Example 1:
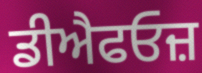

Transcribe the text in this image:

ਡੀਐਫਓਜ਼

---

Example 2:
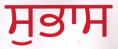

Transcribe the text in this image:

ਸੁਭਾਸ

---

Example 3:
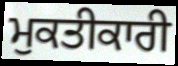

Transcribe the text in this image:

ਮੁਕਤੀਕਾਰੀ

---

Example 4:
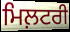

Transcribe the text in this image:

ਮਿਲ਼ਟਰੀ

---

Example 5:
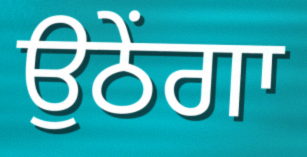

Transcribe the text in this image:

ਉਠੇਂਗਾ